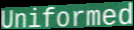
Uniformed